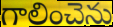
గాలించెను